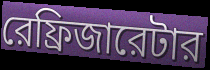
রেফ্রিজারেটার